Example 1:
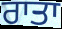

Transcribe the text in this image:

ਰਾਤਾ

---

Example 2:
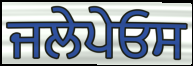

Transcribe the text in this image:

ਜਲੇਪੇਓਸ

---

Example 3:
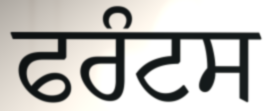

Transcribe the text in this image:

ਫਰੰਟਸ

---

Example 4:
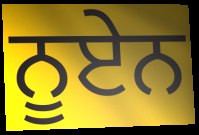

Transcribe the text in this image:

ਨੂਏਨ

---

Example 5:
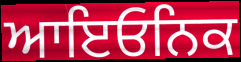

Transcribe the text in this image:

ਆਇਓਨਿਕ